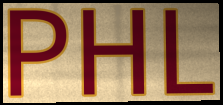
PHL